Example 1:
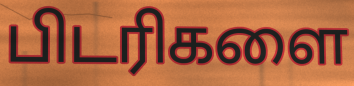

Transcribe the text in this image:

பிடரிகளை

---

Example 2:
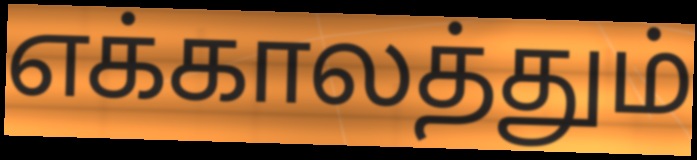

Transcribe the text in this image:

எக்காலத்தும்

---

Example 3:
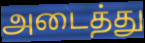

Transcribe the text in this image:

அடைத்து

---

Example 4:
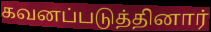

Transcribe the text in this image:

கவனப்படுத்தினார்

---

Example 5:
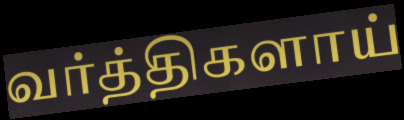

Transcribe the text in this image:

வர்த்திகளாய்